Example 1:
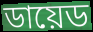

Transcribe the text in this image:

ডায়েড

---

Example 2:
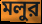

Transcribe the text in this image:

মলুর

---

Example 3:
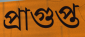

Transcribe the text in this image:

প্রাগুপ্ত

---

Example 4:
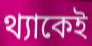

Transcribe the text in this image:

থ্যাকেই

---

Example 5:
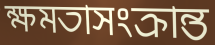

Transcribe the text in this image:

ক্ষমতাসংক্রান্ত